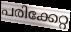
പരിക്കേറ്റ